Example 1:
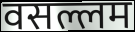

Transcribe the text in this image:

वसल्लम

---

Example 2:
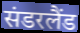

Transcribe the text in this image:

संडरलैंड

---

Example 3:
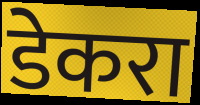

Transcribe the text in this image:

डेकरा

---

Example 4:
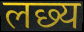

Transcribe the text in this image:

लछ्य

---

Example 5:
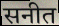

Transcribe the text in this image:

सनीत